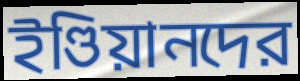
ইণ্ডিয়ানদের